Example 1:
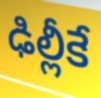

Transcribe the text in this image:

ఢిల్లీకే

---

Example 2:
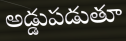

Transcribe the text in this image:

అడ్డుపడుతూ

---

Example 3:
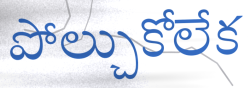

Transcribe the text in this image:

పోల్చుకోలేక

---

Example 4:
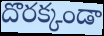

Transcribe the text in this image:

దొరక్కండా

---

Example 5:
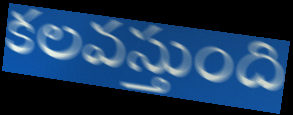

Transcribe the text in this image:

కలవస్తుంది